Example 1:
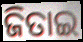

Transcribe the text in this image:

ଜିତାଇ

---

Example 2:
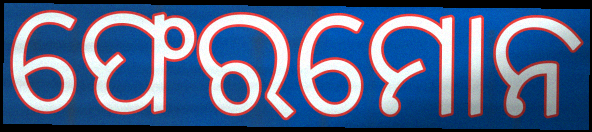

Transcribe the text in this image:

ଫେରମୋନ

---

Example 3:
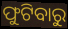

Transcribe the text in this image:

ଫୁଟିବାରୁ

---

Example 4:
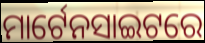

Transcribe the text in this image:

ମାର୍ଟେନସାଇଟରେ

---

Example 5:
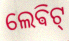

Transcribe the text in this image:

ଲେଵିଟ୍